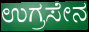
ಉಗ್ರಸೇನ